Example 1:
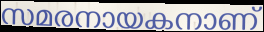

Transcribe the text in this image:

സമരനായകനാണ്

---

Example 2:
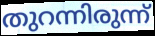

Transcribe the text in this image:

തുറന്നിരുന്ന്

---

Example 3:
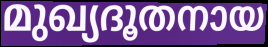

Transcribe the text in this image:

മുഖ്യദൂതനായ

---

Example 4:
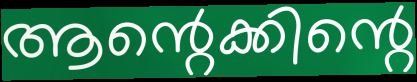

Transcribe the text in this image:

ആന്റെക്കിന്റെ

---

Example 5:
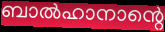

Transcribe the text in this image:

ബാൽഹാനാന്റെ